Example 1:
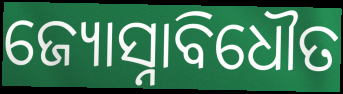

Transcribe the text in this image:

ଜ୍ୟୋସ୍ନାବିଧୌତ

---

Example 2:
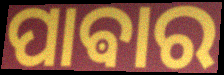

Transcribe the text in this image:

ପାଵାର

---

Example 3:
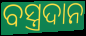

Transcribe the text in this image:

ବସ୍ତ୍ରଦାନ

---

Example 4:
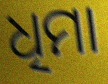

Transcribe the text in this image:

ଧିମା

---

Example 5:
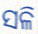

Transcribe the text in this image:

ସଳି